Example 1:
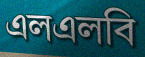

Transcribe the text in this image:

এলএলবি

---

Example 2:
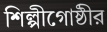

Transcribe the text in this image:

শিল্পীগোষ্ঠীর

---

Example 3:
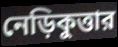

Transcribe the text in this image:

নেড়িকুত্তার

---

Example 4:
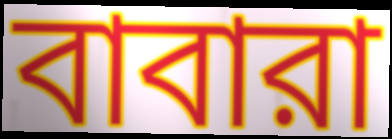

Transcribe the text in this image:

বাবারা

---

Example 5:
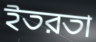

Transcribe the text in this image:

ইতরতা